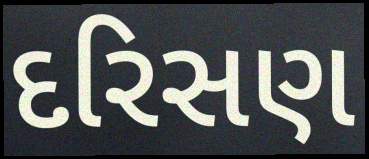
દરિસણ